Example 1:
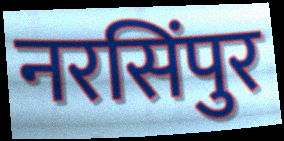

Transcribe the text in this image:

नरसिंपुर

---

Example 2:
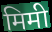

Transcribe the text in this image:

मिमी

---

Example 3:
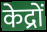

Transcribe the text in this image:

केद्रों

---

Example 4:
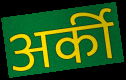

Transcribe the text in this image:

अर्की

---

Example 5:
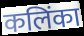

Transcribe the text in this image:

कलिंका